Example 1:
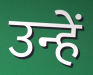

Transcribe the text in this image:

उन्हें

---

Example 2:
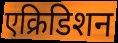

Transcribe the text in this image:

एक्रिडिशन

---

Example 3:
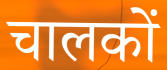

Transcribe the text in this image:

चालकों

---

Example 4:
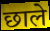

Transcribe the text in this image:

छाले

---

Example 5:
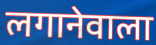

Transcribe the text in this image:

लगानेवाला